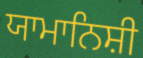
ਯਾਮਾਨਿਸ਼ੀ